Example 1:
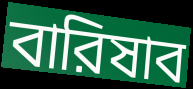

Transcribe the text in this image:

বারিষাব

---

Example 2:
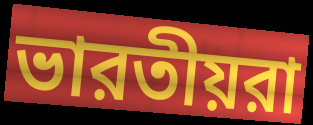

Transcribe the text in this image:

ভারতীয়রা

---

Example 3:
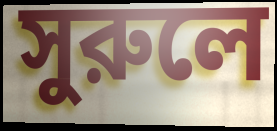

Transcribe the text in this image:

সুরুলে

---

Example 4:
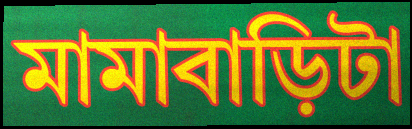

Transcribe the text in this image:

মামাবাড়িটা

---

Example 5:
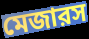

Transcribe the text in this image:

মেজারস